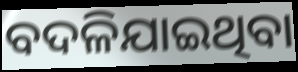
ବଦଳିଯାଇଥିବା